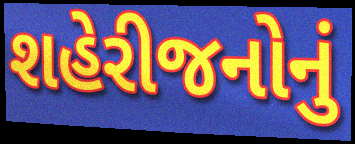
શહેરીજનોનું